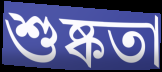
শুষ্কতা